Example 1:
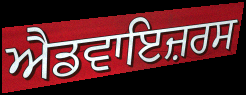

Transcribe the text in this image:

ਐਡਵਾਇਜ਼ਰਸ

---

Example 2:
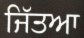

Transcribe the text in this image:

ਜਿੱਤਆ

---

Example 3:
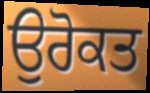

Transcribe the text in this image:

ਉਰੋਕਤ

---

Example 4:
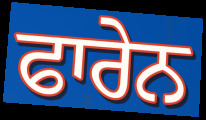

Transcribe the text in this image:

ਫਾਰੇਨ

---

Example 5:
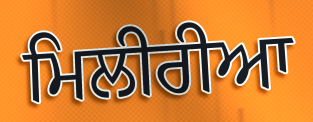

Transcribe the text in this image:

ਮਿਲੀਰੀਆ